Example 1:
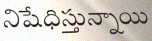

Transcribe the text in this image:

నిషేధిస్తున్నాయి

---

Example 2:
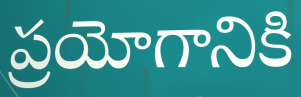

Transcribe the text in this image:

ప్రయోగానికి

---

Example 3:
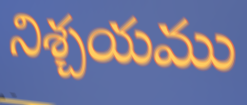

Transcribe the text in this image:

నిశ్చయము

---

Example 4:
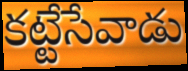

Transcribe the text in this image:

కట్టేసేవాడు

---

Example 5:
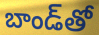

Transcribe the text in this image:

బాండ్‌తో